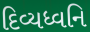
દિવ્યધ્વનિ